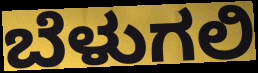
ಬೆಳುಗಲಿ